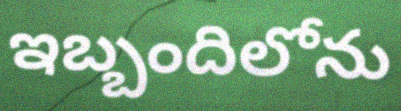
ఇబ్బందిలోను